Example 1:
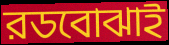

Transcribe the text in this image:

রডবোঝাই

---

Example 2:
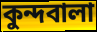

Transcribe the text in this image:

কুন্দবালা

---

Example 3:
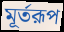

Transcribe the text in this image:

মূর্তরূপ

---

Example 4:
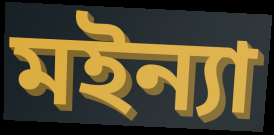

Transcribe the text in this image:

মইন্যা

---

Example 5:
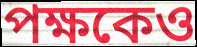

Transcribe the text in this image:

পক্ষকেও